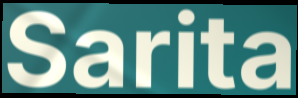
Sarita